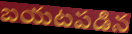
బయటపడిన